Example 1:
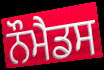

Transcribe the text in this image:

ਨੌਮੈਡਸ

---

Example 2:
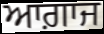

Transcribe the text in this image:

ਆਗ਼ਾਜ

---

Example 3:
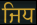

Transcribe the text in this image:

ਜਿਧ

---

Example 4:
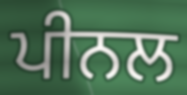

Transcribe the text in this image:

ਪੀਨਲ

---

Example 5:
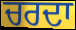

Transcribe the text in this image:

ਚਰਦਾ